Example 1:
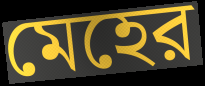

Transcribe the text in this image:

মেহের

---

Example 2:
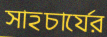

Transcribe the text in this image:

সাহচার্যের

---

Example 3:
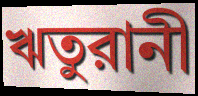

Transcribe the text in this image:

ঋতুরানী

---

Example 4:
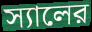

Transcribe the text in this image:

স্যালের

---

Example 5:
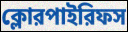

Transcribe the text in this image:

ক্লোরপাইরিফস